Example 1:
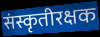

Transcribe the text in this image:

संस्कृतीरक्षक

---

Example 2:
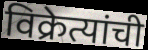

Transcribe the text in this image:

विक्रेत्यांची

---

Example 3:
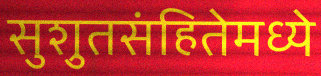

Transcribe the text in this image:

सुश्रुतसंहितेमध्ये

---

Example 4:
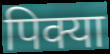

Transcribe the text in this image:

पिक्या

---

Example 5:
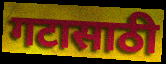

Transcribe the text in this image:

गटासाठी